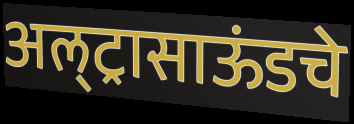
अल्ट्रासाऊंडचे